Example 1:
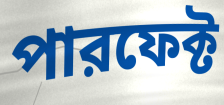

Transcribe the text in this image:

পারফেক্ট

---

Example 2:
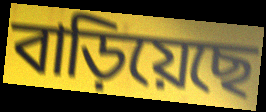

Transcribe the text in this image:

বাড়িয়েছে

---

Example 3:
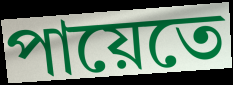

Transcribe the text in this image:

পায়েতে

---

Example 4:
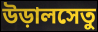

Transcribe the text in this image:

উড়ালসেতু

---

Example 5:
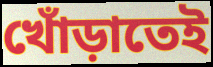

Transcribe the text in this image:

খোঁড়াতেই